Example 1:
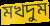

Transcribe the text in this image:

মখদুম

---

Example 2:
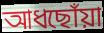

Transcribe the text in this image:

আধছোঁয়া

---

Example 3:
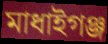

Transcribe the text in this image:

মাধাইগঞ্জ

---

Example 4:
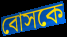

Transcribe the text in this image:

বোসকে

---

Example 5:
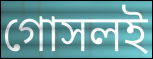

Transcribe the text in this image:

গোসলই